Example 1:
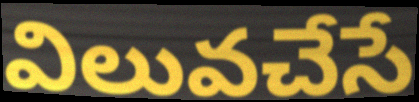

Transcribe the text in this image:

విలువచేసే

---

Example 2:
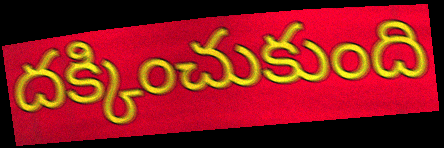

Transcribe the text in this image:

దక్కించుకుంది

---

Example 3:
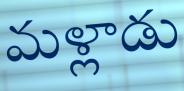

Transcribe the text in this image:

మళ్లాడు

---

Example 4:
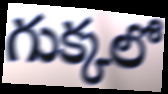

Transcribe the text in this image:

గుక్కలో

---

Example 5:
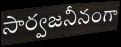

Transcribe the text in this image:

సార్వజనీనంగా